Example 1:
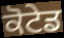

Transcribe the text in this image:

ਕੋਟੇਡ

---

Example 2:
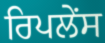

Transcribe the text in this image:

ਰਿਪਲੇਂਸ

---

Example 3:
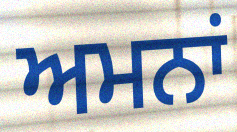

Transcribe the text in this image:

ਅਮਨਾਂ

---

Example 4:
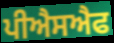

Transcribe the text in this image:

ਪੀਐਸਐਫ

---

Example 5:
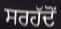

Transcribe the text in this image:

ਸਰਹੱਦੋਂ